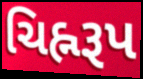
ચિહ્નરૂપ